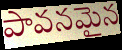
పావనమైన